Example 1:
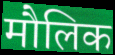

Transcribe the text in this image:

मौलिक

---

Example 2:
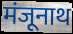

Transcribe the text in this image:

मंजूनाथ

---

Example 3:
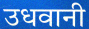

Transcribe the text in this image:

उधवानी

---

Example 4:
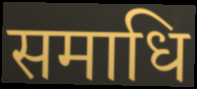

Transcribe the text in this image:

समाधि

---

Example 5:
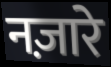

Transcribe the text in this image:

नज़ारे